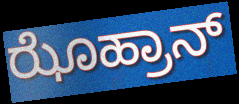
ಝೊಹ್ರಾನ್